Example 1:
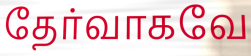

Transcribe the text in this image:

தேர்வாகவே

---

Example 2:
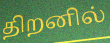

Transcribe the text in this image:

திறனில்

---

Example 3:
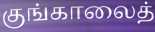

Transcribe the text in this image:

குங்காலைத்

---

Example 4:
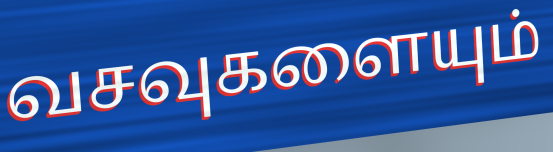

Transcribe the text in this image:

வசவுகளையும்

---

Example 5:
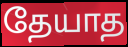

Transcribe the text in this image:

தேயாத